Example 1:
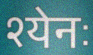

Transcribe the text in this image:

श्येनः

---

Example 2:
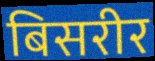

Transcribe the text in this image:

बिसरीर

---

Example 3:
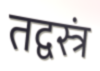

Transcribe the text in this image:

तद्वस्त्रं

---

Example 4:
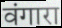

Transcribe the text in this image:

वंगारा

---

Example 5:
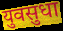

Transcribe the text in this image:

युवसुधा